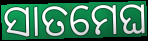
ସାତମେଘ